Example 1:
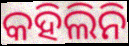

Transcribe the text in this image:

କହିଲିନି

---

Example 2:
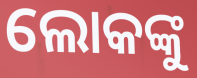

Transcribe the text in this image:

ଲୋକଙ୍କୁ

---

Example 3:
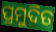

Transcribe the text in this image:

ପ୍ରମୁଦିତ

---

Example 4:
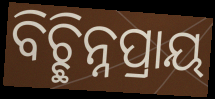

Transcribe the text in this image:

ବିଚ୍ଛିନ୍ନପ୍ରାୟ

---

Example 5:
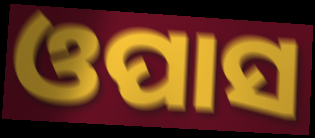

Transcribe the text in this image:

ଓପାସ